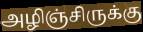
அழிஞ்சிருக்கு